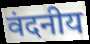
वंदनीय